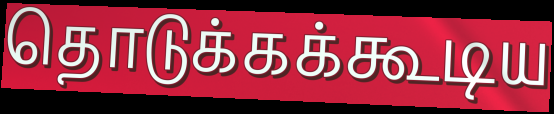
தொடுக்கக்கூடிய